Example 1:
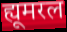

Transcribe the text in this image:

ह्यूमरल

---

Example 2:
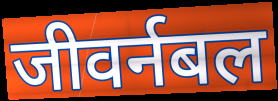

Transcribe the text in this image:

जीवर्नबल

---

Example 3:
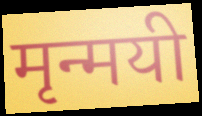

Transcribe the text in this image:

मृन्मयी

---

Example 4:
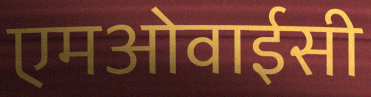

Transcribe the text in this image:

एमओवाईसी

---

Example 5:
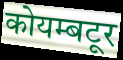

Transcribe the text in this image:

कोयम्‍बटूर